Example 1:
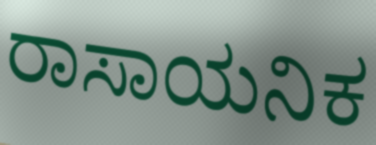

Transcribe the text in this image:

ರಾಸಾಯನಿಕ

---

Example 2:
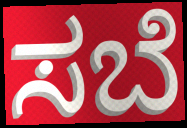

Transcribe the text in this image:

ಸಬೆ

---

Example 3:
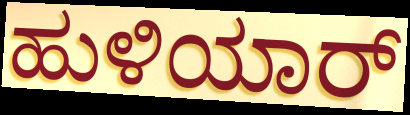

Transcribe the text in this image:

ಹುಳಿಯಾರ್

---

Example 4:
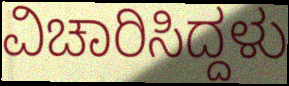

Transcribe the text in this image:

ವಿಚಾರಿಸಿದ್ದಳು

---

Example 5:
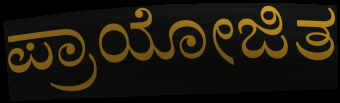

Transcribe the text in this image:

ಪ್ರಾಯೋಜಿತ